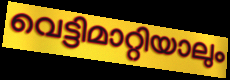
വെട്ടിമാറ്റിയാലും